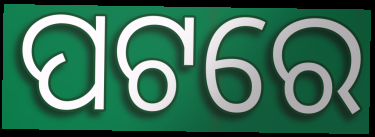
ପଟରେ